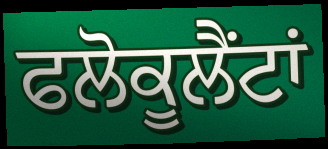
ਫਲੋਕੂਲੈਂਟਾਂ